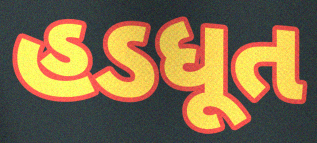
હડધૂત